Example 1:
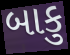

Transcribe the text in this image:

બાકુ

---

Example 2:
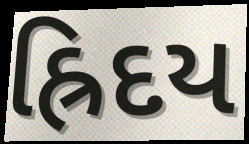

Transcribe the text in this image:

હ્રિદય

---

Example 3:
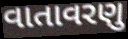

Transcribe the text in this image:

વાતાવરણુ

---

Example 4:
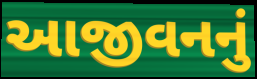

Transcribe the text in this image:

આજીવનનું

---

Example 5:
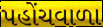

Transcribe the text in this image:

પહોંચવાળા